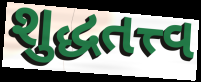
શુદ્ધતત્ત્વ